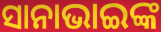
ସାନାଭାଇଙ୍କ